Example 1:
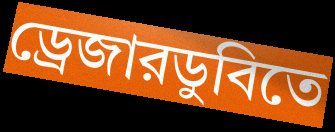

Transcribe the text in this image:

ড্রেজারডুবিতে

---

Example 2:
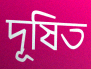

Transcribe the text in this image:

দূষিত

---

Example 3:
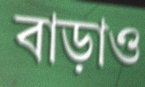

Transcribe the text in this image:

বাড়াও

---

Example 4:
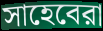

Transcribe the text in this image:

সাহেবেরা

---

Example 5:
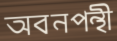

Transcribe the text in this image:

অবনপন্থী